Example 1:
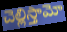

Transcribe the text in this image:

చెల్లిస్తామో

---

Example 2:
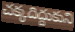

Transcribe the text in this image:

చక్కదిద్దుకుని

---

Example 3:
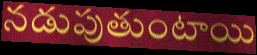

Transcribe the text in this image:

నడుపుతుంటాయి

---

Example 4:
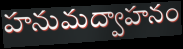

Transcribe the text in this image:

హనుమద్వాహనం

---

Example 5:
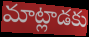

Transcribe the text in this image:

మాట్లాడకు